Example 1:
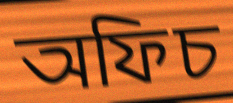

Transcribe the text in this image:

অফিচ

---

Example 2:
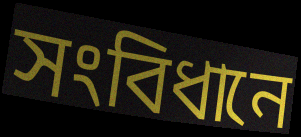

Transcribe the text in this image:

সংবিধানে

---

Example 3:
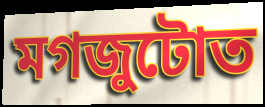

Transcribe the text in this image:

মগজুটোত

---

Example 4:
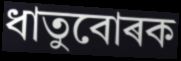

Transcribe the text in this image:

ধাতুবোৰক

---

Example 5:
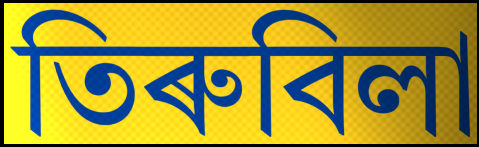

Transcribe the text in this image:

তিৰুবিলা